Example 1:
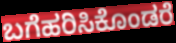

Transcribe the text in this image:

ಬಗೆಹರಿಸಿಕೊಂಡರೆ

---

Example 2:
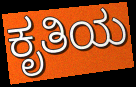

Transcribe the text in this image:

ಕೃತಿಯ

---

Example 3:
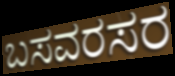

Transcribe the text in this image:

ಬಸವರಸರ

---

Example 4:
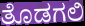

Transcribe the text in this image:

ತೊಡಗಲಿ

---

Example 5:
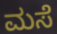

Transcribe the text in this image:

ಮಸೆ